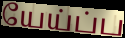
யேய்ப்ப